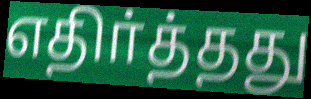
எதிர்த்தது